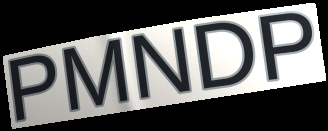
PMNDP